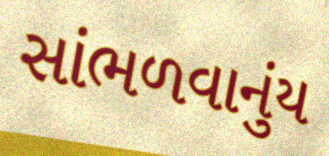
સાંભળવાનુંય